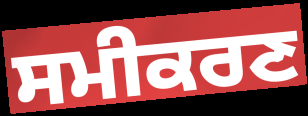
ਸਮੀਕਰਣ